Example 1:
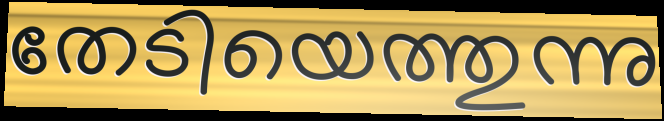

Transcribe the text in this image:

തേടിയെത്തുന്നു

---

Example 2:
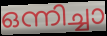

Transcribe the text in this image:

ഒന്നിച്ചാ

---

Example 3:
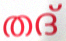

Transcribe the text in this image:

തദ്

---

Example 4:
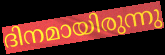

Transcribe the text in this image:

ദിനമായിരുന്നു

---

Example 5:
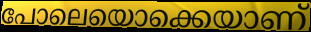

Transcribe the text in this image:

പോലെയൊക്കെയാണ്